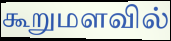
கூறுமளவில்